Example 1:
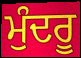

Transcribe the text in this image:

ਮੁੰਦਰੂ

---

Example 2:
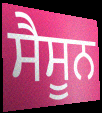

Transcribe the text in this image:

ਸੈਸੂਨ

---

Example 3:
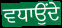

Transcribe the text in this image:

ਵਧਾਉਂਦੇ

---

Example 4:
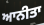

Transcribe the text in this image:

ਆਨੀਤਾ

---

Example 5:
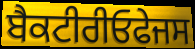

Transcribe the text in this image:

ਬੈਕਟੀਰੀਓਫੇਜਸ